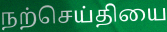
நற்செய்தியை